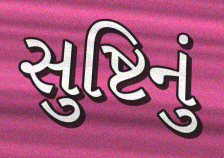
સુષ્ટિનું